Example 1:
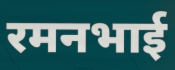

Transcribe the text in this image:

रमनभाई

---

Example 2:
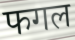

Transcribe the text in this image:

फगल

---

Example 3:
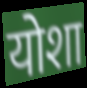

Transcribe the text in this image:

योशा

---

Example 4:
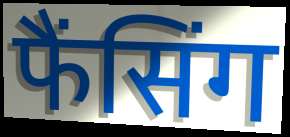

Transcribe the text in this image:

फैंसिंग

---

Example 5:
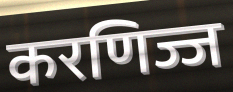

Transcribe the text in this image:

करणिज्ज